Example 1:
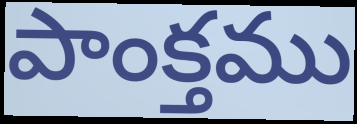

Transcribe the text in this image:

పాంక్తము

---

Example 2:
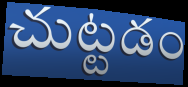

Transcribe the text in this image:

చుట్టడం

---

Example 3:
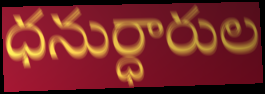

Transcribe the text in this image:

ధనుర్ధారుల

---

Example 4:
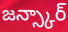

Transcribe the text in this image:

జన్స్కార్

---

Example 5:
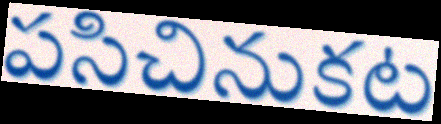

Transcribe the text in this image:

పసిచినుకట